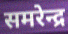
समरेन्द्र